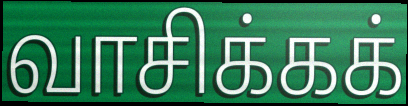
வாசிக்கக்